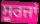
ਸੂਰਜਾਂ